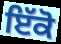
ਇੱਕੋ